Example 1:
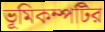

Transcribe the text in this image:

ভূমিকম্পটির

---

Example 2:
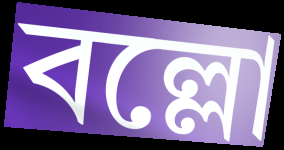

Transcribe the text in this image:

বল্লো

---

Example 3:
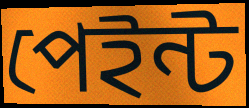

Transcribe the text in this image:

পেইন্ট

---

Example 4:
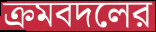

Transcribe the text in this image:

ক্রমবদলের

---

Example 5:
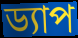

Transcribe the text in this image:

ড্যাপ